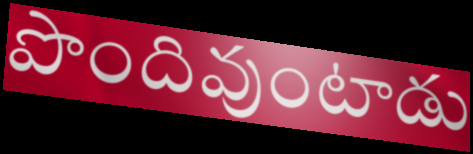
పొందివుంటాడు